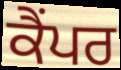
ਕੈਂਪਰ